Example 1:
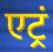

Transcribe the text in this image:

एट्रं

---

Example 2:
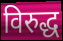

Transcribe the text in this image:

विरुद्ध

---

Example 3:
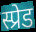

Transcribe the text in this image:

स्प्रेड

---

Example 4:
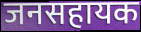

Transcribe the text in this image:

जनसहायक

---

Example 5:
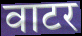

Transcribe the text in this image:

वाटर